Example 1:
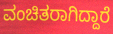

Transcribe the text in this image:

ವಂಚಿತರಾಗಿದ್ದಾರೆ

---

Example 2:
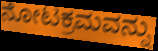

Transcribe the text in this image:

ನೋಟಕ್ರಮವನ್ನು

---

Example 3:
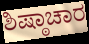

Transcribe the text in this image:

ಶಿಷ್ಠಾಚಾರ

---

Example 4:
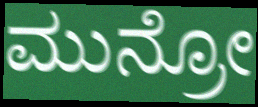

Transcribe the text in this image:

ಮುನ್ರೋ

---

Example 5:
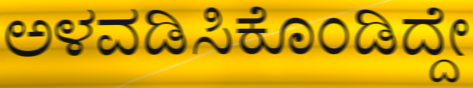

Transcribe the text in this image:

ಅಳವಡಿಸಿಕೊಂಡಿದ್ದೇ